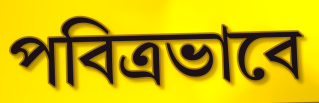
পবিত্রভাবে